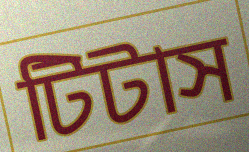
টিটাস